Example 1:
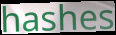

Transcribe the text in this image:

hashes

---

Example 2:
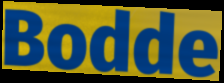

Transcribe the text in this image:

Bodde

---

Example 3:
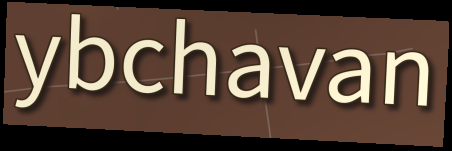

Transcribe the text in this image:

ybchavan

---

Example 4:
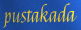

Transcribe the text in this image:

pustakada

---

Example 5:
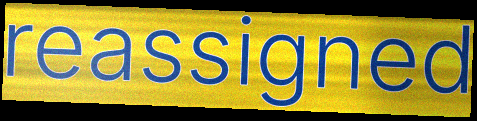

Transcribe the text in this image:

reassigned